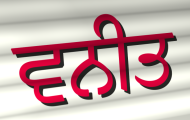
ਵਨੀਤ